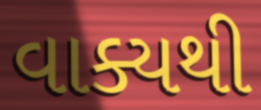
વાક્યથી